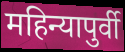
महिन्यापुर्वी